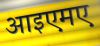
आइएमए